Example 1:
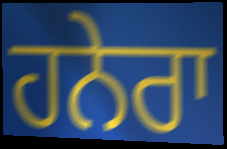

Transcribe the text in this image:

ਹਨੇਰਾ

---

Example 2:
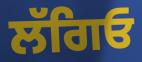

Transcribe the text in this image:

ਲੱਗਿਓ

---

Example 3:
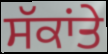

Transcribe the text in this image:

ਸੱਕਾਂਤੇ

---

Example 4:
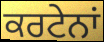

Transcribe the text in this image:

ਕਰਟੇਨਾਂ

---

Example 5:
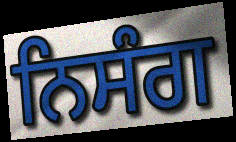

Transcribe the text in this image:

ਨਿਸੰਗ